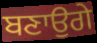
ਬਣਾਉਗੇ